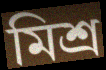
মিশ্ৰ